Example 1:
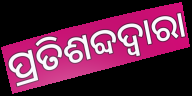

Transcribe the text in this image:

ପ୍ରତିଶବ୍ଦଦ୍ୱାରା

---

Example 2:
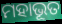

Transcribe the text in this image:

ମହାଭୂତ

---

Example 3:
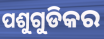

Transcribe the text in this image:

ପଶୁଗୁଡିକର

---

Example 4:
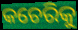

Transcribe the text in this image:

କଚେରିକୁ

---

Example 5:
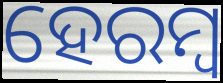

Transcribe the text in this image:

ହେରମ୍ୱ